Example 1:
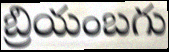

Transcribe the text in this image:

బ్రియంబగు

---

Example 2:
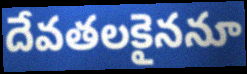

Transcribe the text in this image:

దేవతలకైననూ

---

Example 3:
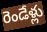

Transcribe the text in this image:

రెండేళ్లు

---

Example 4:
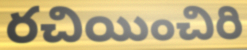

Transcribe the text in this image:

రచియించిరి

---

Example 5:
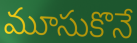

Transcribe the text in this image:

మూసుకొనే